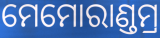
ମେମୋରାଣ୍ଡମ୍ର